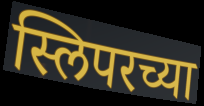
स्लिपरच्या